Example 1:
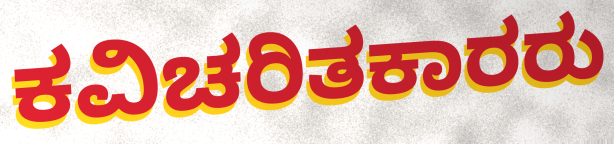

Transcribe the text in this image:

ಕವಿಚರಿತಕಾರರು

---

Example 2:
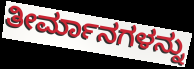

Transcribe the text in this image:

ತೀರ್ಮಾನಗಳನ್ನು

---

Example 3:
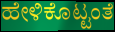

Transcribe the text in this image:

ಹೇಳಿಕೊಟ್ಟಂತೆ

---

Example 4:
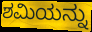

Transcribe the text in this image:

ಶಮಿಯನ್ನು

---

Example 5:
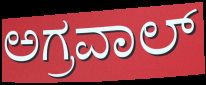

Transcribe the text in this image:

ಅಗ್ರವಾಲ್